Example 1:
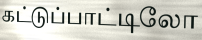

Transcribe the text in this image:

கட்டுப்பாட்டிலோ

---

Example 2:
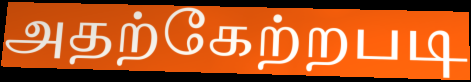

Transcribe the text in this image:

அதற்கேற்றபடி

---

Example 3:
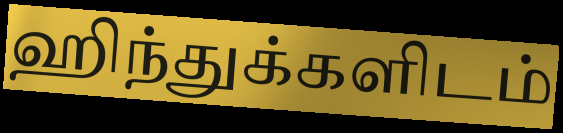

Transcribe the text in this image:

ஹிந்துக்களிடம்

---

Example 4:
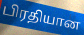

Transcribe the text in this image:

பிரதியான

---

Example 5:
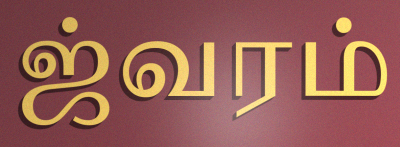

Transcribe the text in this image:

ஜ்வரம்